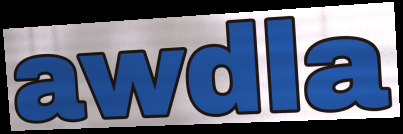
awdla